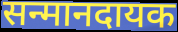
सन्मानदायक